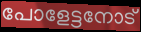
പോളേട്ടനോട്